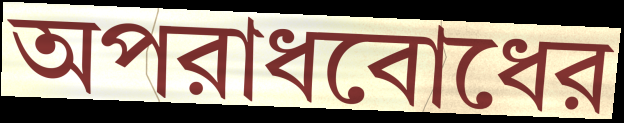
অপরাধবোধের